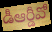
డీఆర్డీవో